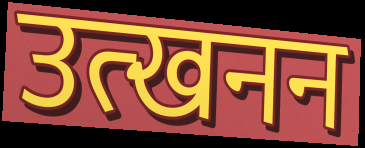
उत्‍खनन